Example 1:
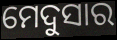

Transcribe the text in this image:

ମେଦୁସାର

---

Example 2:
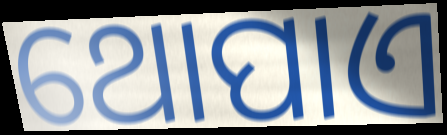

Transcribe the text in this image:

ଥୋପାଏ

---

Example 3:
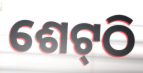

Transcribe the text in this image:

ଶେଟ୍‍ଠି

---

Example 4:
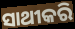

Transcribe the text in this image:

ସାଥୀକରି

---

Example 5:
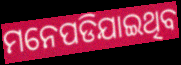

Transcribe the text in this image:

ମନେପଡିଯାଇଥିବ